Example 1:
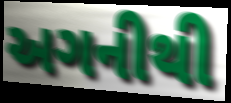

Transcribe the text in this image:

અગનીથી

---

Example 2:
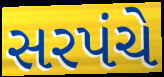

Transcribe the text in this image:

સરપંચે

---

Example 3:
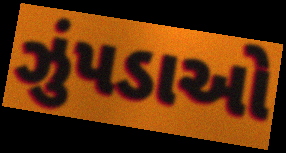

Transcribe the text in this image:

ઝુંપડાઓ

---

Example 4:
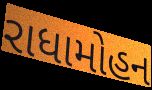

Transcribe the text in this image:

રાધામોહન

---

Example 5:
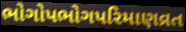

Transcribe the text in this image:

ભોગોપભોગપરિમાણવ્રત